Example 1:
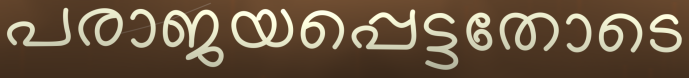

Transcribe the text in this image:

പരാജയപ്പെട്ടതോടെ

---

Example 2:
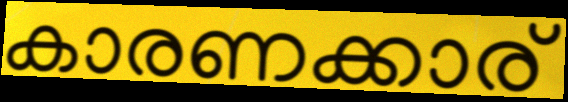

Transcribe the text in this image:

കാരണക്കാര്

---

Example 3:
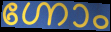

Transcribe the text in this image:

ഗ്നോം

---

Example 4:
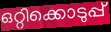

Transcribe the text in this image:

ഒറ്റിക്കൊടുപ്പ്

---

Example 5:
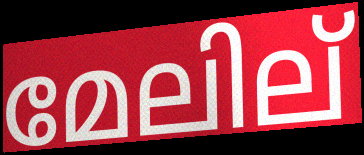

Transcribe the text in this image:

മേലില്